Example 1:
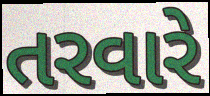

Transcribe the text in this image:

તરવારે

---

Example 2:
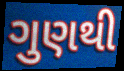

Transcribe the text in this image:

ગુણથી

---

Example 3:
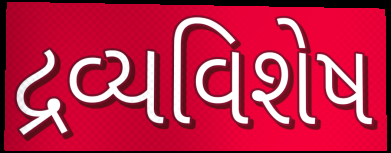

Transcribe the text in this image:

દ્રવ્યવિશેષ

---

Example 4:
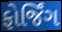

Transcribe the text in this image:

ફોર્જિંગ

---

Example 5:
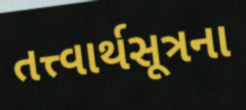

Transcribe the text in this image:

તત્ત્વાર્થસૂત્રના